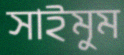
সাইমুম